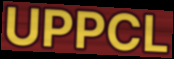
UPPCL